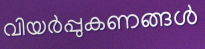
വിയർപ്പുകണങ്ങൾ